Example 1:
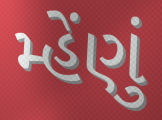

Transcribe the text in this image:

મ્હેંણું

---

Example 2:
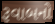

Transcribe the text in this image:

રૂવાબનો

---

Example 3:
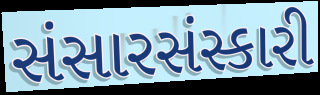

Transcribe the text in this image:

સંસારસંસ્કારી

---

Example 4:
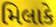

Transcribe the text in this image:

મિલાકે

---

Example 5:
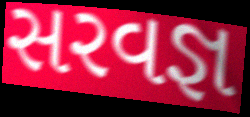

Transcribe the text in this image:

સરવજ્ઞ